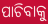
ପାଚିବାକୁ